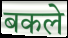
बकले